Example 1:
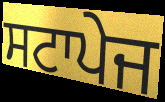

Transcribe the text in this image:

ਸਟਾਪੇਜ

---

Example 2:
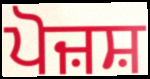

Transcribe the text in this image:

ਪੋਜ਼ਸ਼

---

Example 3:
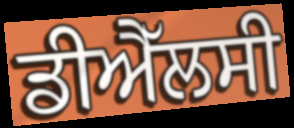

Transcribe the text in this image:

ਡੀਐੱਲਸੀ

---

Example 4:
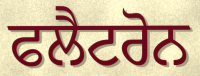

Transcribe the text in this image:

ਫਲੈਟਰੋਨ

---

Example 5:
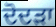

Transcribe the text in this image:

ਦੋਦੜਾ